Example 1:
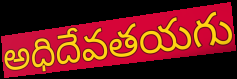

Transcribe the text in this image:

అధిదేవతయగు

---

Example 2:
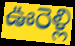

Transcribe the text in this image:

ఊరెళ్లి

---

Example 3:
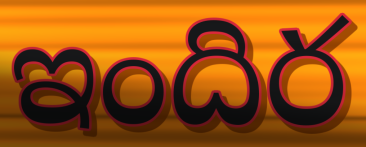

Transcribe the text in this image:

ఇందిర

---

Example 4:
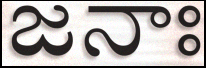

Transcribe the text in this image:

జనాః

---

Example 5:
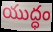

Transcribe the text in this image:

యుద్ధం